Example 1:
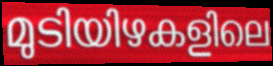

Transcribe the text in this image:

മുടിയിഴകളിലെ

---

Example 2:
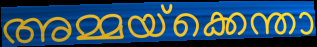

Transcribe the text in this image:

അമ്മയ്‌ക്കെന്താ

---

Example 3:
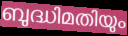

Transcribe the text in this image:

ബുദ്ധിമതിയും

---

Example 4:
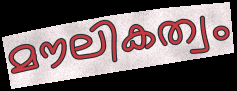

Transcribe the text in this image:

മൗലികത്വം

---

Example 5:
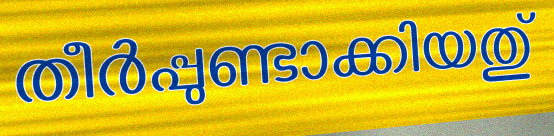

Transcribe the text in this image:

തീർപ്പുണ്ടാക്കിയതു്